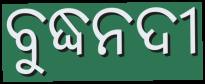
ବୁଦ୍ଧନଦୀ